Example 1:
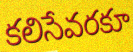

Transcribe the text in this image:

కలిసేవరకూ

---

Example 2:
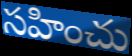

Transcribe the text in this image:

సహించు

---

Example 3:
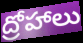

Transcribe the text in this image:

ద్రోహాలు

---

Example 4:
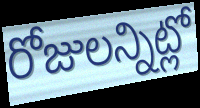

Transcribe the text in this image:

రోజులన్నిట్లో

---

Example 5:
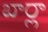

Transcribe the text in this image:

బార్లా